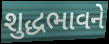
શુદ્ધભાવને